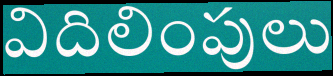
విదిలింపులు